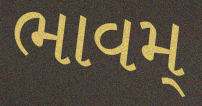
ભાવમ્